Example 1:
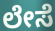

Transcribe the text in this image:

ಲೇಸೆ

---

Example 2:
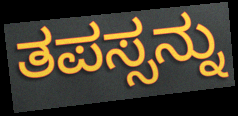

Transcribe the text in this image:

ತಪಸ್ಸನ್ನು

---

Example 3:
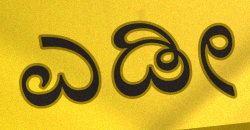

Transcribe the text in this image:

ಎಡೀ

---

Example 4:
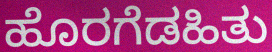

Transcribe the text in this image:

ಹೊರಗೆಡಹಿತು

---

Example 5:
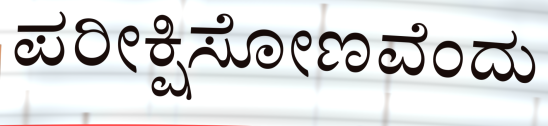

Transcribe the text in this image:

ಪರೀಕ್ಷಿಸೋಣವೆಂದು